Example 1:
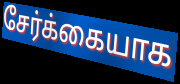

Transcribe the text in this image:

சேர்க்கையாக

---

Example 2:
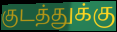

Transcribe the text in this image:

குடத்துக்கு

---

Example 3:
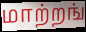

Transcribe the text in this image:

மாற்றங்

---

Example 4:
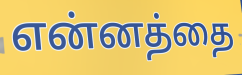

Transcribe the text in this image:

என்னத்தை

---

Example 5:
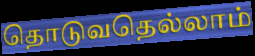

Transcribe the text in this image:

தொடுவதெல்லாம்